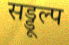
सड्डूल्प